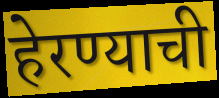
हेरण्याची